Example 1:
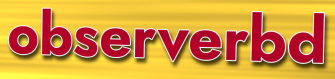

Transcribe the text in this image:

observerbd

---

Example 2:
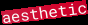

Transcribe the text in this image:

aesthetic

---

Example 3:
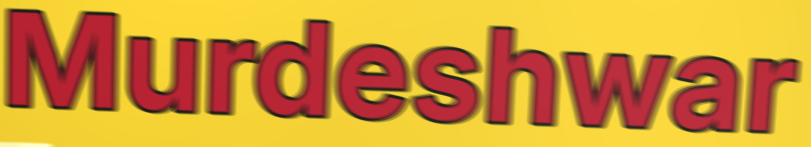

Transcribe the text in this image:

Murdeshwar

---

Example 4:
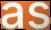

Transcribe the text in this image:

as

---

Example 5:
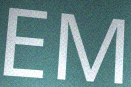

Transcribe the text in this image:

EM